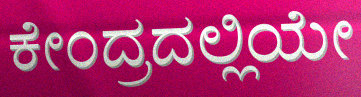
ಕೇಂದ್ರದಲ್ಲಿಯೇ